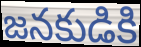
జనకుడికి